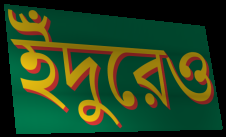
ইঁদুরেও